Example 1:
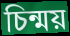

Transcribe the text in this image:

চিন্ময়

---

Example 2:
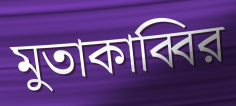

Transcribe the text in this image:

মুতাকাব্বির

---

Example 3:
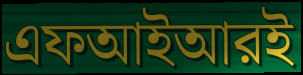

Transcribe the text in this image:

এফআইআরই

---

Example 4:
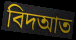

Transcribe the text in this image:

বিদআত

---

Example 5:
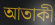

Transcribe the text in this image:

আতাকী